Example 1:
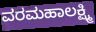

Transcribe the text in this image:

ವರಮಹಾಲಕ್ಷ್ಮಿ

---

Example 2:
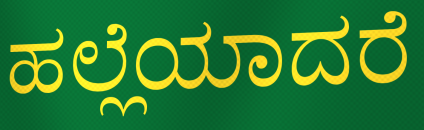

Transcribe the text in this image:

ಹಲ್ಲೆಯಾದರೆ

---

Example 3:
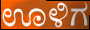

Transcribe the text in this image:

ಊಳಿಗ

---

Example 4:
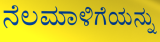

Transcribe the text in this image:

ನೆಲಮಾಳಿಗೆಯನ್ನು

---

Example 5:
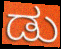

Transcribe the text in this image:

ಡು